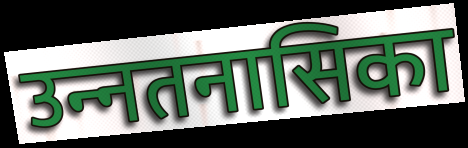
उन्नतनासिका